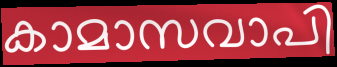
കാമാസവാപി